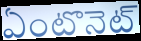
ఏంటొనెట్